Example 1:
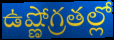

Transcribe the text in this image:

ఉష్ణోగ్రతల్లో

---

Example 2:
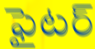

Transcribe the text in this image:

ఫైటర్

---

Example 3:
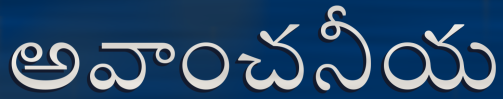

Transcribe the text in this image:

అవాంచనీయ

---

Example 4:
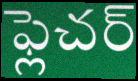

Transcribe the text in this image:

ఫ్లెచర్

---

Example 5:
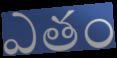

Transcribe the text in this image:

ఎతం